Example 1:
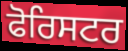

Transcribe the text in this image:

ਫੋਰਿਸਟਰ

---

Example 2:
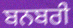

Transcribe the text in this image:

ਬਨਬਰੀ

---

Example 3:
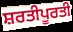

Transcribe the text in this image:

ਸ਼ਰਤੀਪੂਰਤੀ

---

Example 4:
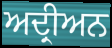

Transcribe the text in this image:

ਅਦ੍ਰੀਅਨ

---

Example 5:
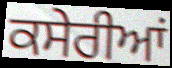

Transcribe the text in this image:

ਕਸੇਰੀਆਂ